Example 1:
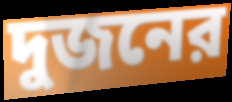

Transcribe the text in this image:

দুজনের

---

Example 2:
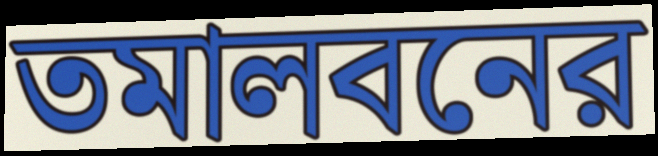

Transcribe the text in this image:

তমালবনের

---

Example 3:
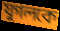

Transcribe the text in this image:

যুগলকে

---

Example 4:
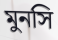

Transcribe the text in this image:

মুনসি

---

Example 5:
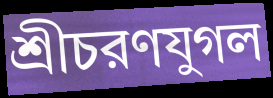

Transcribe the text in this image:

শ্রীচরণযুগল